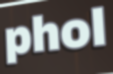
phol